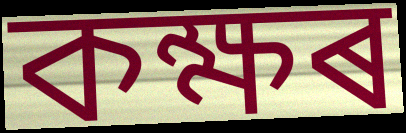
কক্ষৰ